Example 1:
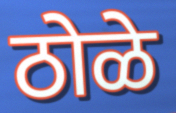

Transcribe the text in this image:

ठोळे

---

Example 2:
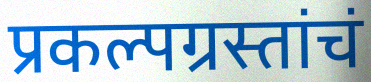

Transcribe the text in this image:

प्रकल्पग्रस्तांचं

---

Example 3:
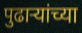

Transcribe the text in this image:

पुढाऱ्यांच्या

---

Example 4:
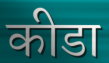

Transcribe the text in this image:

कीडा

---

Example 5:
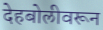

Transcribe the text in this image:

देहबोलीवरून